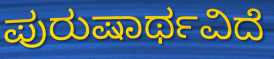
ಪುರುಷಾರ್ಥವಿದೆ